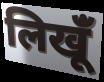
लिखूंँ